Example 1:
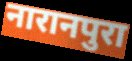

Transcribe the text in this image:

नारानपुरा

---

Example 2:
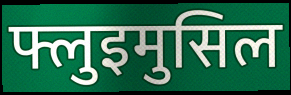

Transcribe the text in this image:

फ्लुइमुसिल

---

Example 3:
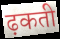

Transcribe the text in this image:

ढ़कती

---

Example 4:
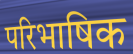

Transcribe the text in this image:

परिभाषिक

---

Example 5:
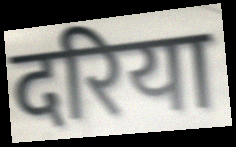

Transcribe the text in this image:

दरिया